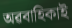
অৱবাহিকাই